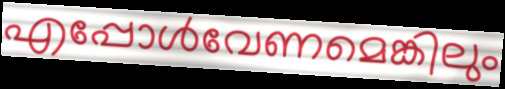
എപ്പോൾവേണമെങ്കിലും